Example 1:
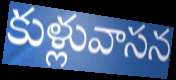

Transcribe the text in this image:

కుళ్లువాసన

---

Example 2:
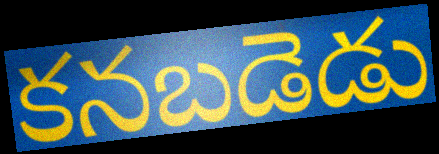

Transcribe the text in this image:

కనబడెడు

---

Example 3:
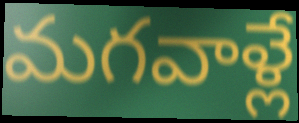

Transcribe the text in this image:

మగవాళ్లే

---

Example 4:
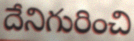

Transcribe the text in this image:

దేనిగురించి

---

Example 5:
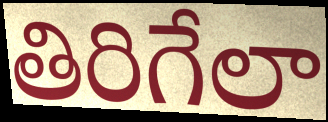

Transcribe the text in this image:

తిరిగేలా